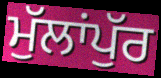
ਮੁੱਲਾਂਪੁੱਰ